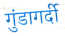
गुंडागर्दी